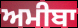
ਅਮੀਬਾ